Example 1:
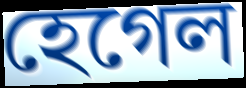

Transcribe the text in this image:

হেগেল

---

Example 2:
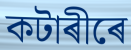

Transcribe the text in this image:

কটাৰীৰে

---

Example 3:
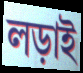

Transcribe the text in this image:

লড়াই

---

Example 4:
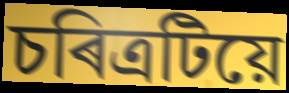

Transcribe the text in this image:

চৰিত্ৰটিয়ে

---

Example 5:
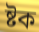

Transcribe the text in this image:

ষ্টক